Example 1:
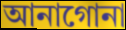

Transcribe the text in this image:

আনাগোনা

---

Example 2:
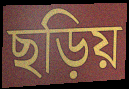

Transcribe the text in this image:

ছড়িয়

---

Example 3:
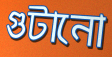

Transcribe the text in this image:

গুটানো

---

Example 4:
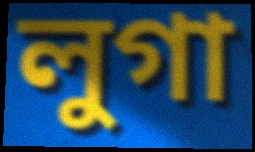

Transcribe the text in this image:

লুগা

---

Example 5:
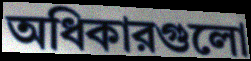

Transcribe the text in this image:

অধিকারগুলো